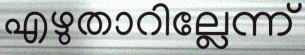
എഴുതാറില്ലേന്ന്